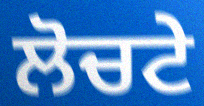
ਲੋਚਟੇ